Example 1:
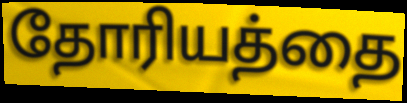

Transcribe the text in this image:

தோரியத்தை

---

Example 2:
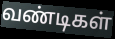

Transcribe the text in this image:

வண்டிகள்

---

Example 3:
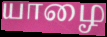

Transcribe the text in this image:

யாழை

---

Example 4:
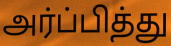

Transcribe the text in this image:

அர்ப்பித்து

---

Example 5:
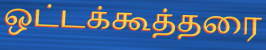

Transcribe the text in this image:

ஒட்டக்கூத்தரை